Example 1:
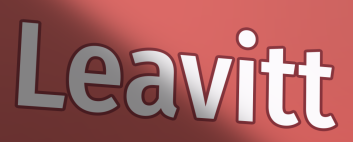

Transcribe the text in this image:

Leavitt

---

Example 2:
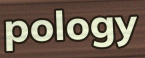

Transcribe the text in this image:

pology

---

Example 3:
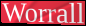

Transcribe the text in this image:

Worrall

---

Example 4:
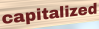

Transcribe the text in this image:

capitalized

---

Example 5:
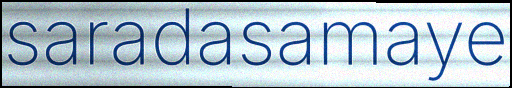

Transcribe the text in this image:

saradasamaye